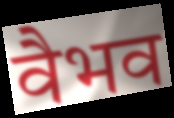
वैभव